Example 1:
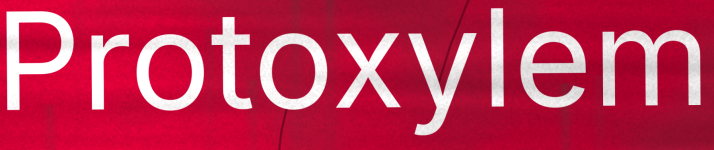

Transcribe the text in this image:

Protoxylem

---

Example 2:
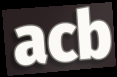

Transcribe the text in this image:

acb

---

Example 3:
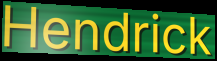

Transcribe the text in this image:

Hendrick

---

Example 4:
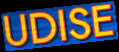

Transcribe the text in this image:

UDISE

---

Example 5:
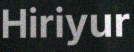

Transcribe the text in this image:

Hiriyur